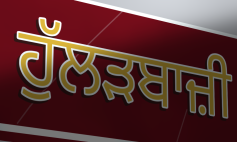
ਹੁੱਲੜਬਾਜ਼ੀ